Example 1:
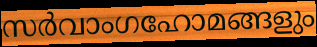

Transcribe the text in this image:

സർവാംഗഹോമങ്ങളും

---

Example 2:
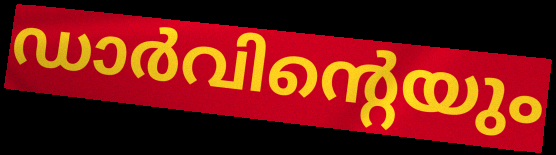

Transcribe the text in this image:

ഡാർവിന്റെയും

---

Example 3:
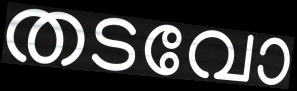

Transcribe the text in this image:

തടവോ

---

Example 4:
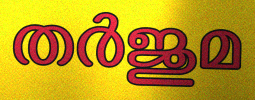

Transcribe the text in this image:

തർജുമ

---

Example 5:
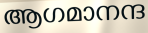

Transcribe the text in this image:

ആഗമാനന്ദ